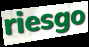
riesgo